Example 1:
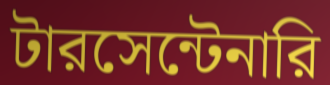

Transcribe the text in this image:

টারসেন্টেনারি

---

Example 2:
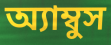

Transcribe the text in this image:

অ্যাম্বুস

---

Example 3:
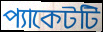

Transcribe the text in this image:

প্যাকেটটি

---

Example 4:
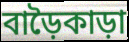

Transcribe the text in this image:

বাড়ৈকাড়া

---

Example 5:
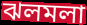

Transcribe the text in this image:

ঝলমলা